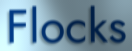
Flocks